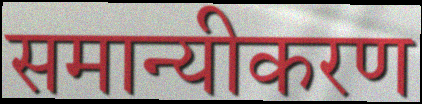
समान्यीकरण